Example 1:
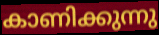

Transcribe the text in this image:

കാണിക്കുന്നു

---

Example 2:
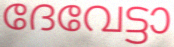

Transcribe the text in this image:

ദേവേട്ടാ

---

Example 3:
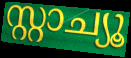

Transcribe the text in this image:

സ്റ്റാച്യൂ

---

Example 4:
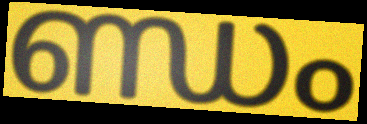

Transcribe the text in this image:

ണ്ഡം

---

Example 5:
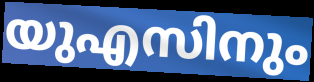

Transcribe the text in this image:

യുഎസിനും